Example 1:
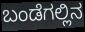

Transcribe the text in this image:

ಬಂಡೆಗಲ್ಲಿನ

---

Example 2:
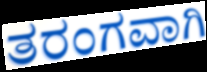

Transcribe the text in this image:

ತರಂಗವಾಗಿ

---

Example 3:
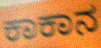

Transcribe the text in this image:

ಕಾಕಾನ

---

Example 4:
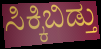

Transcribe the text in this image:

ಸಿಕ್ಕಿಬಿಡ್ತು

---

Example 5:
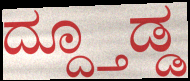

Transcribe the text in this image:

ದ್ದ್ತೂಡ್ಡ